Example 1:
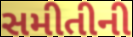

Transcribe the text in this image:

સમીતીની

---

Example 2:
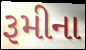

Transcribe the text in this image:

રૂમીના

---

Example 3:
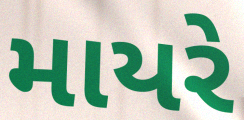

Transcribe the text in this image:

માયરે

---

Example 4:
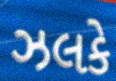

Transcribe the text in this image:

ઝલકે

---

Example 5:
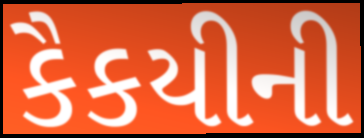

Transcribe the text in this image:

કૈકયીની